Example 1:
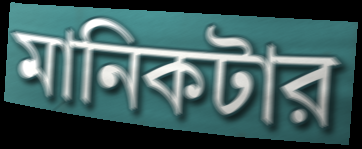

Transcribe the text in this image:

মানিকটার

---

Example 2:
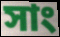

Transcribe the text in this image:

সাং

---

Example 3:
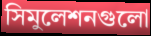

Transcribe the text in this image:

সিমুলেশনগুলো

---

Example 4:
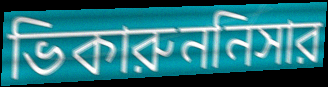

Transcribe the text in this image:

ভিকারুননিসার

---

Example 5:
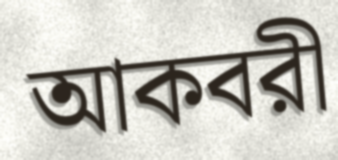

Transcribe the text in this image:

আকবরী